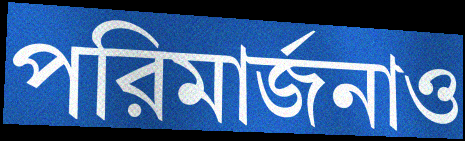
পরিমার্জনাও